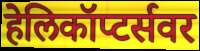
हेलिकॉप्टर्सवर